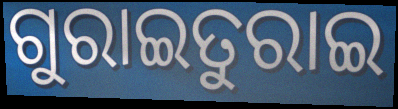
ଗୁରାଇତୁରାଇ